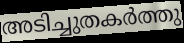
അടിച്ചുതകർത്തു